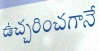
ఉచ్చరించగానే